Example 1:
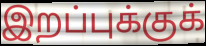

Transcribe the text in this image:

இறப்புக்குக்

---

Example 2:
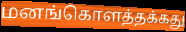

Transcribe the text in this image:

மனங்கொளத்தக்கது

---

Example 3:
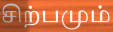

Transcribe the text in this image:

சிற்பமும்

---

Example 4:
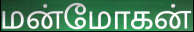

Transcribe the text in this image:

மன்மோகன்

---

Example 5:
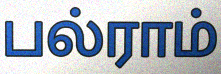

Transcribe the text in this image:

பல்ராம்